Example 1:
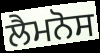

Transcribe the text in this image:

ਲੈਮਨੋਸ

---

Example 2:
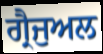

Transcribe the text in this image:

ਗ੍ਰੈਜੁਅਲ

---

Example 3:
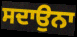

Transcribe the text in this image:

ਸਦਾਉਨਾ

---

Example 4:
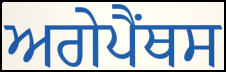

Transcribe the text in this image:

ਅਗੇਪੈਂਥਸ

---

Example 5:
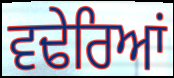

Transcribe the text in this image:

ਵਢੇਰਿਆਂ